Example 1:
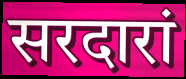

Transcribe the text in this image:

सरदारां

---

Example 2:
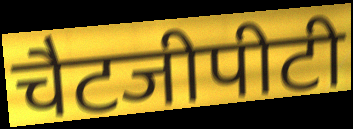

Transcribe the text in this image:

चैटजीपीटी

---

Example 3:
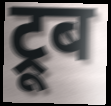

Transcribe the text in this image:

ट्रूब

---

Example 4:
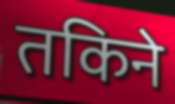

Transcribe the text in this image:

तकिने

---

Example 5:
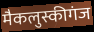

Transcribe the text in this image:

मैकलुस्कीगंज